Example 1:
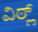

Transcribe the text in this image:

ವಿಠ್ಲ್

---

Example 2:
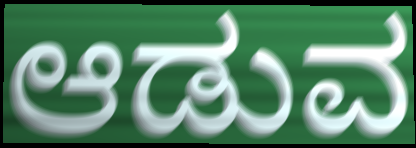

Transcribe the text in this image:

ಆಡುವ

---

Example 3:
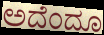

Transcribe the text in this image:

ಅದೆಂದೂ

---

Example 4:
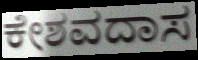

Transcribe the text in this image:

ಕೇಶವದಾಸ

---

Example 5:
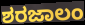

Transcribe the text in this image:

ಶರಜಾಲಂ